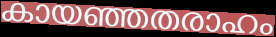
കായഞ്ഞതരാഹം